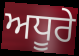
ਅਧੂਰੇ